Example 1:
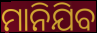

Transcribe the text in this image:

ମାନିଯିବ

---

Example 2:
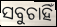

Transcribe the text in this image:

ସବୁଚାହିଁ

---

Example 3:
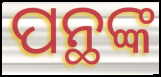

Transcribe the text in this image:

ପନ୍ଥଙ୍କ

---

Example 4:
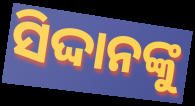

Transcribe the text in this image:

ସିଦ୍ଦାନଙ୍କୁ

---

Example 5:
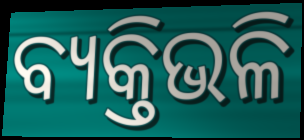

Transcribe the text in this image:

ବ୍ୟକ୍ତିଭଳି